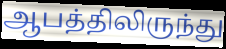
ஆபத்திலிருந்து